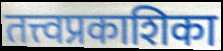
तत्त्वप्रकाशिका